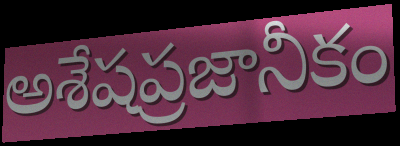
అశేషప్రజానీకం